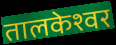
तालकेश्वर